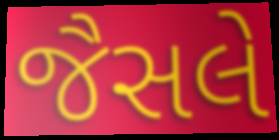
જૈસલે